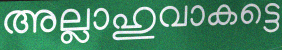
അല്ലാഹുവാകട്ടെ